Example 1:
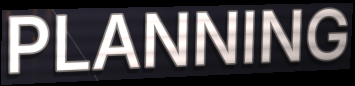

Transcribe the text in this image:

PLANNING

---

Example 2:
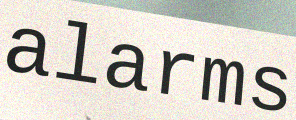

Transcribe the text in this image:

alarms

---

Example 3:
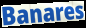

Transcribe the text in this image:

Banares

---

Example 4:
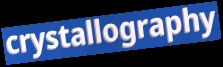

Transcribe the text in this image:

crystallography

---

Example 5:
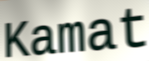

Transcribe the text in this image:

Kamat